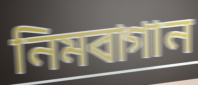
নিমবাগান